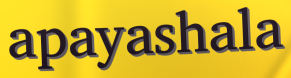
apayashala